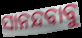
ସାନନ୍ଦବାବୁ